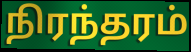
நிரந்தரம்